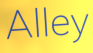
Alley